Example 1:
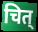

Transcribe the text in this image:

चित्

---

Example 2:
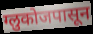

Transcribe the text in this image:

ग्लुकोजपासून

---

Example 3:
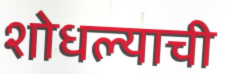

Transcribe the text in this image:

शोधल्याची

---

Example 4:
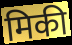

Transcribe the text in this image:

मिकी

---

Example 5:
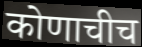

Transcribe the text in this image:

कोणाचीच